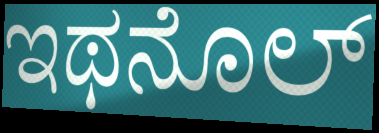
ಇಥನೊಲ್